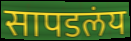
सापडलंय